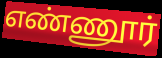
எண்ணூர்